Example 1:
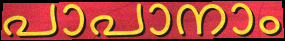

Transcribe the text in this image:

പാപാനാം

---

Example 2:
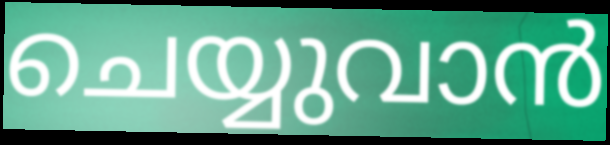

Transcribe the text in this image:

ചെയ്യുവാൻ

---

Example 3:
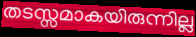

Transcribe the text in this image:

തടസ്സമാകയിരുന്നില്ല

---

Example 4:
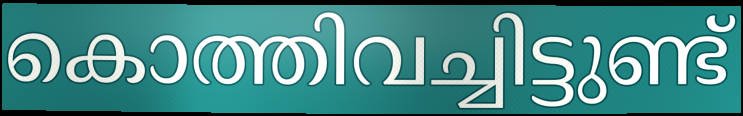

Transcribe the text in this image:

കൊത്തിവച്ചിട്ടുണ്ട്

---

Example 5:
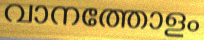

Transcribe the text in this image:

വാനത്തോളം